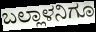
ಬಲ್ಲಾಳನಿಗೂ